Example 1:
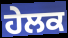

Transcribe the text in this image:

ਹੇਲਕ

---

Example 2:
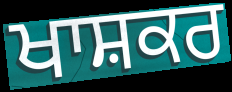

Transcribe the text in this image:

ਖਾਸ਼ਕਰ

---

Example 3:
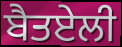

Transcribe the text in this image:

ਬੈਤਏਲੀ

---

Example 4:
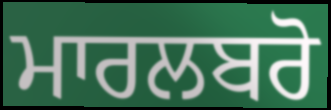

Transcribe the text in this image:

ਮਾਰਲਬਰੋ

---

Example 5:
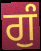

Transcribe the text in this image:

ਗੁੰ